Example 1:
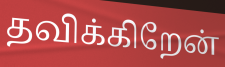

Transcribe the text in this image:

தவிக்கிறேன்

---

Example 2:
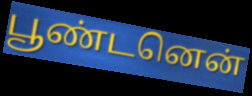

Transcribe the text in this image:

பூண்டனென்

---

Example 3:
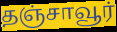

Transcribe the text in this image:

தஞ்சாவூர்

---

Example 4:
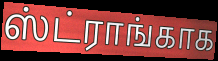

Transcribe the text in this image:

ஸ்ட்ராங்காக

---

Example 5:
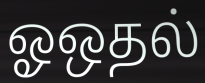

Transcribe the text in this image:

ஓஒதல்